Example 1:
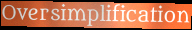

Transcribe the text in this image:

Oversimplification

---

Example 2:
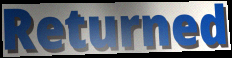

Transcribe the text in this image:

Returned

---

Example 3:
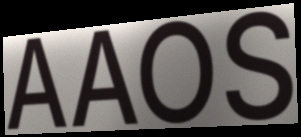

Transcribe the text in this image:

AAOS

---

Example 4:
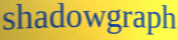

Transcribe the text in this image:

shadowgraph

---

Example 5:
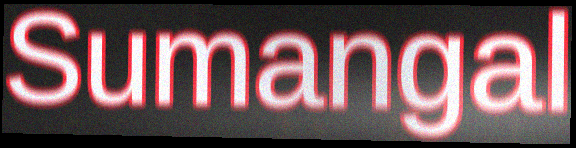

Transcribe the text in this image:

Sumangal